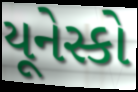
યૂનેસ્કો